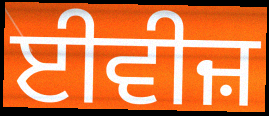
ਈਵੀਜ਼